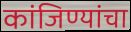
कांजिण्यांचा